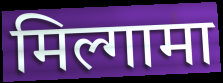
मिल्गामा